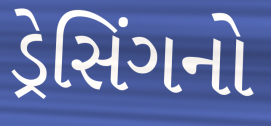
ડ્રેસિંગનો